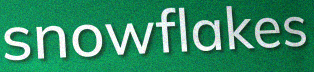
snowflakes